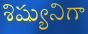
శిష్యునిగా